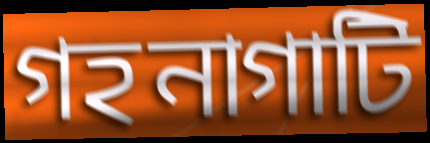
গহনাগাটি